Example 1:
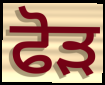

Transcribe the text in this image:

ਫੋਡ਼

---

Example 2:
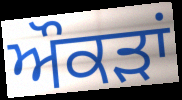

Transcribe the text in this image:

ਔਕਡ਼ਾਂ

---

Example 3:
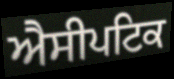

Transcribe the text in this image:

ਐਸੀਪਟਿਕ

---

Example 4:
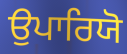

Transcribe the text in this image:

ਉਪਾਰਿਯੋ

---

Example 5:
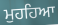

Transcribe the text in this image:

ਮੁਹਹਿਆ